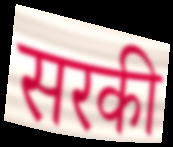
सरकी